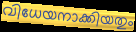
വിധേയനാക്കിയതും